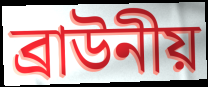
ব্ৰাউনীয়